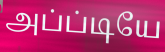
அப்ப்டியே